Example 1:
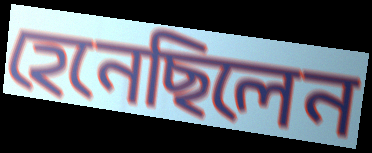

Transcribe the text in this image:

হেনেছিলেন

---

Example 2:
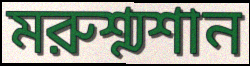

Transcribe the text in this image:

মরুশ্মশান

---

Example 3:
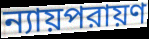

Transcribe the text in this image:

ন্যায়পরায়ণ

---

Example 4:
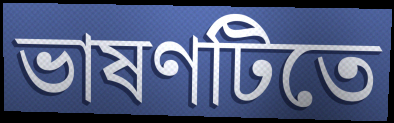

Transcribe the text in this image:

ভাষণটিতে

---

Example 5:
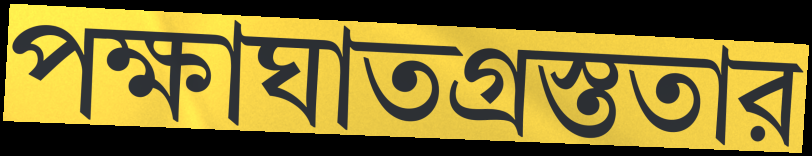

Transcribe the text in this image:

পক্ষাঘাতগ্রস্ততার